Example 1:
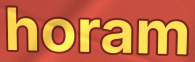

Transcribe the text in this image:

horam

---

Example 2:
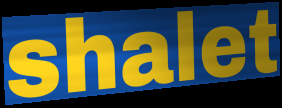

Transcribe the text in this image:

shalet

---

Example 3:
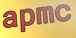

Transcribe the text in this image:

apmc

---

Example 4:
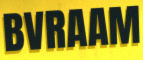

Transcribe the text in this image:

BVRAAM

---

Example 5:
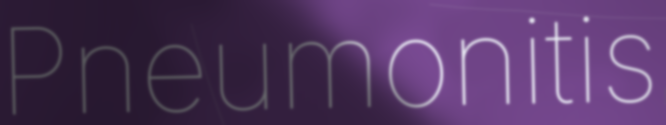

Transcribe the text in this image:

Pneumonitis